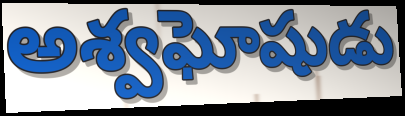
అశ్వఘోషుడు